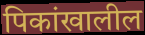
पिकांखालील